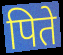
पिते